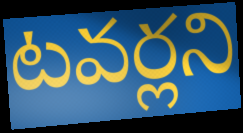
టవర్లని